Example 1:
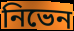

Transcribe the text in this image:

নিভেন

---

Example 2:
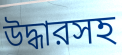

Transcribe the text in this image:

উদ্ধারসহ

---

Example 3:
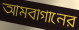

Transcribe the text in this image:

আমবাগানের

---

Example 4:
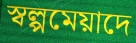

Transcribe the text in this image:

স্বল্পমেয়াদে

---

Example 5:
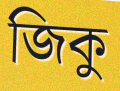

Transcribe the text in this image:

জিকু